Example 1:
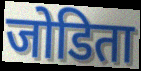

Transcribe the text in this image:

जोडिता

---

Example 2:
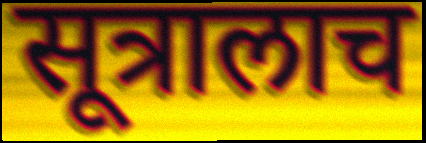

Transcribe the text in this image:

सूत्रालाच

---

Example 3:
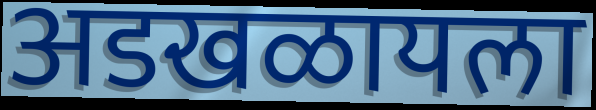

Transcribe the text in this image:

अडखळायला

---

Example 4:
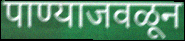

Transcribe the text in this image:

पाण्याजवळून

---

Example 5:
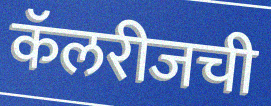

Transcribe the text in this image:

कॅलरीजची